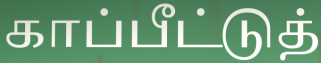
காப்பீட்டுத்